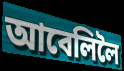
আবেলিলৈ